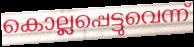
കൊല്ലപ്പെട്ടുവെന്ന്